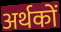
अर्थकों